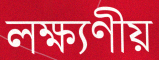
লক্ষ্যণীয়